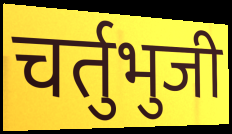
चर्तुभुजी